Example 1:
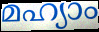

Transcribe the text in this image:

മഹ്യാം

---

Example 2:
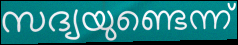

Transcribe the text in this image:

സദ്യയുണ്ടെന്ന്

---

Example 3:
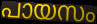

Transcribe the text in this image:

പായസം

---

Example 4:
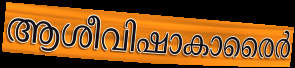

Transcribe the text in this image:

ആശീവിഷാകാരൈർ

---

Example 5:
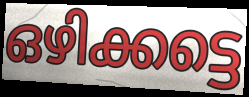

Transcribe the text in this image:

ഒഴിക്കട്ടെ